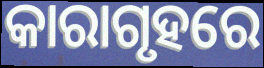
କାରାଗୃହରେ